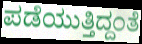
ಪಡೆಯುತ್ತಿದ್ದಂತೆ